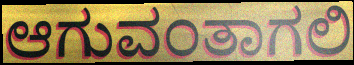
ಆಗುವಂತಾಗಲಿ